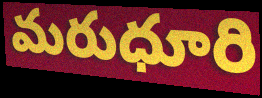
మరుధూరి